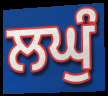
ਲਘੁੰ